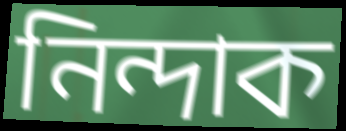
নিন্দাক